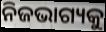
ନିଜଭାଗ୍ୟକୁ